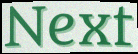
Next